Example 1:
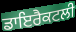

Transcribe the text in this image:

ਡਾਇਰੈਕਟਲੀ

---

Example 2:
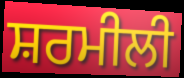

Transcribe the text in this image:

ਸ਼ਰਮੀਲੀ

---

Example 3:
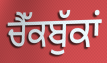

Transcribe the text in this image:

ਚੈੱਕਬੁੱਕਾਂ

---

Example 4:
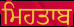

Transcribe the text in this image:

ਮਿਹਤਾਬ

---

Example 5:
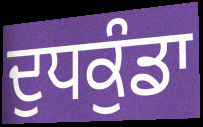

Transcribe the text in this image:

ਦੁਧਕੁੰਡਾ